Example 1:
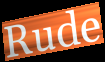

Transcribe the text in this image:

Rude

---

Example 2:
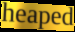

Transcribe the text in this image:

heaped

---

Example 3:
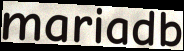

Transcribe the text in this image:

mariadb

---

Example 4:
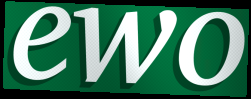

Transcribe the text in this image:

ewo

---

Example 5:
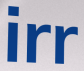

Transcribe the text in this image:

irr